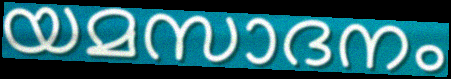
യമസാദനം